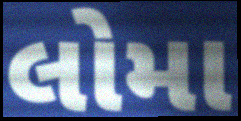
લોમા